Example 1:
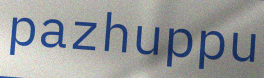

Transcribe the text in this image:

pazhuppu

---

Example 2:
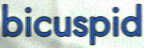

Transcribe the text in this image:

bicuspid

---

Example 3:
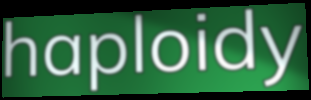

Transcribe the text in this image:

haploidy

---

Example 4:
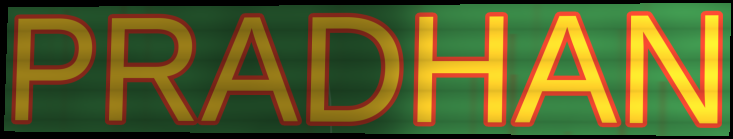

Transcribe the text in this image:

PRADHAN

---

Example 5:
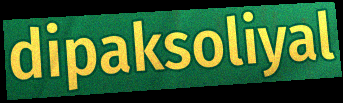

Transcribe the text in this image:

dipaksoliyal